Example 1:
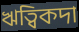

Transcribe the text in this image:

ঋত্বিকদা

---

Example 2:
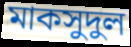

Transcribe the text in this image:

মাকসুদুল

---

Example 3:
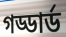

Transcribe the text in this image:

গড্ডার্ড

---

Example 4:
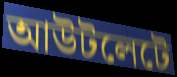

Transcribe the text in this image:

আউটলেটে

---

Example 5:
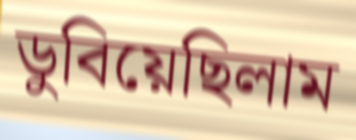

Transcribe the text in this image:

ডুবিয়েছিলাম